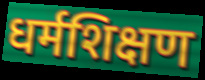
धर्मशिक्षण